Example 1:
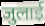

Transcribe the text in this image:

जुलाई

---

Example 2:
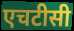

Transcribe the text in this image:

एचटीसी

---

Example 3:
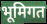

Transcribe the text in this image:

भूमिगत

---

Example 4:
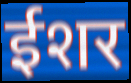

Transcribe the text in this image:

ईशर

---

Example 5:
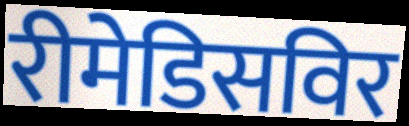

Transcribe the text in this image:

रीमेडिसविर